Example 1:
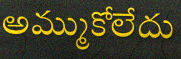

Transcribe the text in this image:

అమ్ముకోలేదు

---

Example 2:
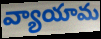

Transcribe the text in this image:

వ్యాయామ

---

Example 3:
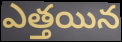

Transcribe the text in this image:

ఎత్తయిన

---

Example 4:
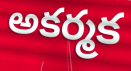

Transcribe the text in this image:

అకర్మక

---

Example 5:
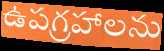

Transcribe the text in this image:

ఉపగ్రహాలను